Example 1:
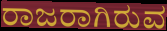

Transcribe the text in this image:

ರಾಜರಾಗಿರುವ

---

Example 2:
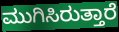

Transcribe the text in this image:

ಮುಗಿಸಿರುತ್ತಾರೆ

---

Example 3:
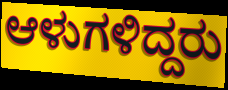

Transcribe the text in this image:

ಆಳುಗಳಿದ್ದರು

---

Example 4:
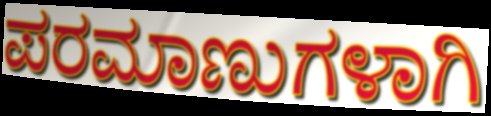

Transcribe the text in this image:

ಪರಮಾಣುಗಳಾಗಿ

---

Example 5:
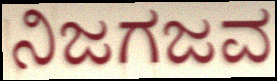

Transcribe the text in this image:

ನಿಜಗಜವ